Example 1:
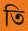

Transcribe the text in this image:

তি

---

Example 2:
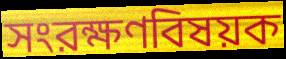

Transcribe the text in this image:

সংরক্ষণবিষয়ক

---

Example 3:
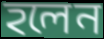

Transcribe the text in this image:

হলেন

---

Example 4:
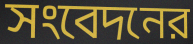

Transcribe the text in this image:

সংবেদনের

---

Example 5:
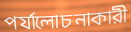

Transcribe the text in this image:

পর্যালোচনাকারী